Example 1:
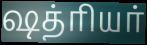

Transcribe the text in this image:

ஷத்ரியர்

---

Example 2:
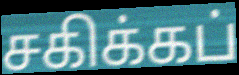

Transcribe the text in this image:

சகிக்கப்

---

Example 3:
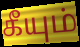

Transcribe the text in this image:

கீயும்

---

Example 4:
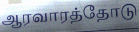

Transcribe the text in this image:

ஆரவாரத்தோடு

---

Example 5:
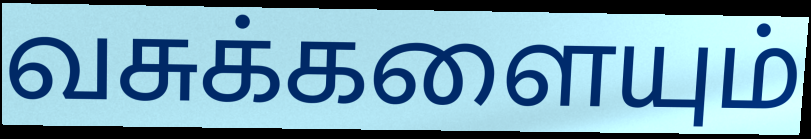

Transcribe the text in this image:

வசுக்களையும்